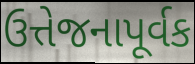
ઉત્તેજનાપૂર્વક